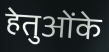
हेतुओंके